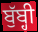
ਬੁੱਬ੍ਹੀ